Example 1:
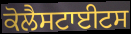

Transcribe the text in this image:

ਕੋਲੈਸਟਾਈਟਸ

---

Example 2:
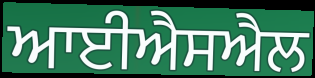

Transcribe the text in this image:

ਆਈਐਸਐਲ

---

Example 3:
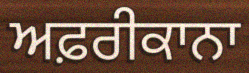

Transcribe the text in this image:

ਅਫ਼ਰੀਕਾਨਾ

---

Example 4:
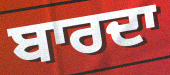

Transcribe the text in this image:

ਬਾਰਦਾ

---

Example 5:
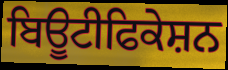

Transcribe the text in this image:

ਬਿਊਟੀਫਿਕੇਸ਼ਨ